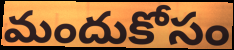
మందుకోసం